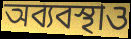
অব্যবস্থাও